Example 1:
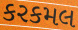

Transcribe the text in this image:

કરકમલ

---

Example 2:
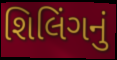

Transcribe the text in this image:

શિલિંગનું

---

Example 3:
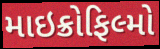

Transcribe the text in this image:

માઇક્રોફિલ્મો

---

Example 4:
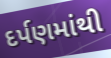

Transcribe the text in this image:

દર્પણમાંથી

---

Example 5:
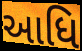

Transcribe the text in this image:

આધિ